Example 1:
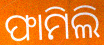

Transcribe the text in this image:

ଫାମିଲି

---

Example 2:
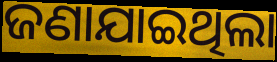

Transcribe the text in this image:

ଜଣାଯାଇଥିଲା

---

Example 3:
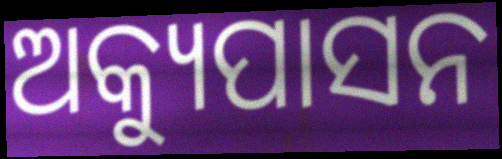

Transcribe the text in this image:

ଅକ୍ୟୁପାସନ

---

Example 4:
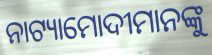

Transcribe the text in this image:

ନାଟ୍ୟାମୋଦୀମାନଙ୍କୁ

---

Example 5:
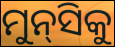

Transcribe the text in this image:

ମୁନ୍‌ସିକୁ